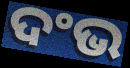
ଦଂଭ